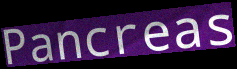
Pancreas